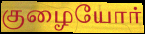
குழையோர்